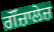
ਗੌਂਜ਼ਾਲੇਜ਼